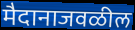
मैदानाजवळील